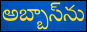
అబ్బాస్‌ను